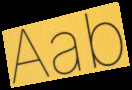
Aab